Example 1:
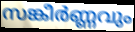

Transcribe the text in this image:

സങ്കീർണ്ണവും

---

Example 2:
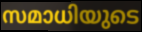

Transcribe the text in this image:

സമാധിയുടെ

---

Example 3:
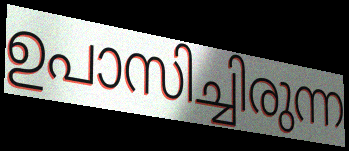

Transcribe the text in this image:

ഉപാസിച്ചിരുന്ന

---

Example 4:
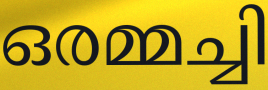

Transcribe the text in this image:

ഒരമ്മച്ചി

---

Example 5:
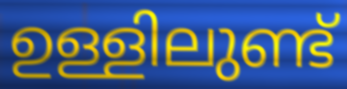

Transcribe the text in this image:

ഉള്ളിലുണ്ട്